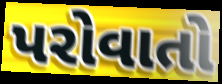
પરોવાતો